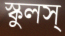
স্কুলস্